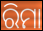
ରିମା